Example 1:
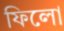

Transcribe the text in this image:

ফিলো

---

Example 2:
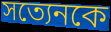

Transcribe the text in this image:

সত্যেনকে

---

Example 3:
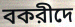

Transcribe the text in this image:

বকরীদে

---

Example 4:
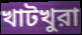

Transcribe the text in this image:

খাটখুরা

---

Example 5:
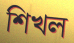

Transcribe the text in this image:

শিখল